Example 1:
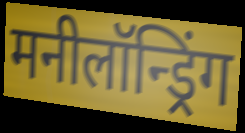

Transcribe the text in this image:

मनीलॉन्ड्रिंग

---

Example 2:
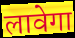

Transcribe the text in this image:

लावेगा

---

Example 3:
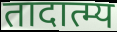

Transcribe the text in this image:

तादात्म्य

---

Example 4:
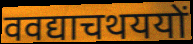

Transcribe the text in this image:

ववद्याचथययों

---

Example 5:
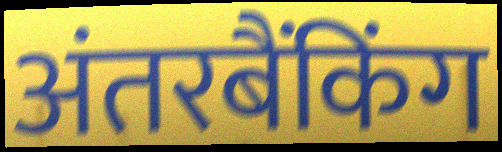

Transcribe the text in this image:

अंतरबैंकिंग